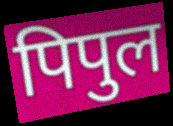
पिपुल